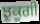
ਝੁਕੂਗੀ